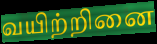
வயிற்றினை